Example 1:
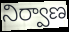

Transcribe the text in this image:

నిర్వాణ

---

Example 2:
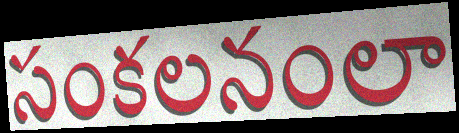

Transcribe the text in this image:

సంకలనంలా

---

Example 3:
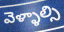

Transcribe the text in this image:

వెళ్ళాల్సి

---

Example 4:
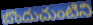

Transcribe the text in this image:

బొందుచుంటిని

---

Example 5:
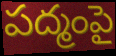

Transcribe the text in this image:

పద్మంపై